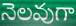
నెలవుగా